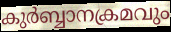
കുർബ്ബാനക്രമവും